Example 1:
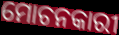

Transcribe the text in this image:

ମୋଚନକାରୀ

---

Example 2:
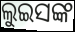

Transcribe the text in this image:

ଲୁଇସଙ୍କ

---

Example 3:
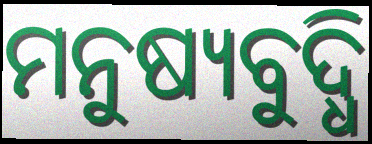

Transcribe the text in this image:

ମନୁଷ୍ୟବୁଦ୍ଧି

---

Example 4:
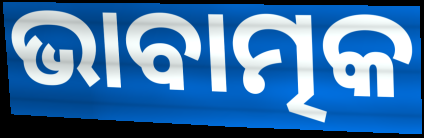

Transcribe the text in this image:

ଭାବାତ୍ମକ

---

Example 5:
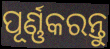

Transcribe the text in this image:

ପୂର୍ଣ୍ଣକରନ୍ତୁ